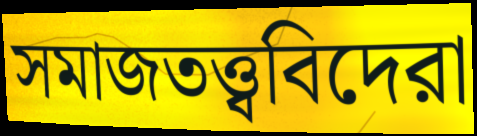
সমাজতত্ত্ববিদেরা